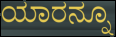
ಯಾರನ್ನೂ